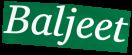
Baljeet